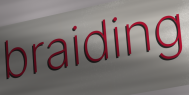
braiding